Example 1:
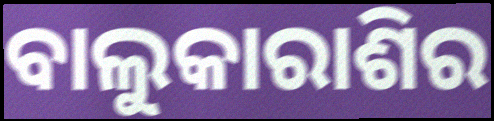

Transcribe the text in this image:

ବାଲୁକାରାଶିର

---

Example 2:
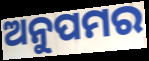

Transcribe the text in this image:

ଅନୁପମର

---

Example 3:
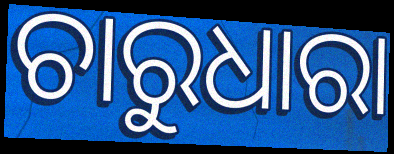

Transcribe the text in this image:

ଚାରୁଧାରା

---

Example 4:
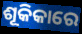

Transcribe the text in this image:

ଶୂକିକାରେ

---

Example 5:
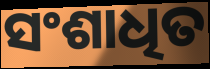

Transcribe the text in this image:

ସଂଶାଧିତ